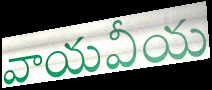
వాయవీయ